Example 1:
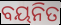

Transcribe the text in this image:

ବୟନିତ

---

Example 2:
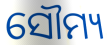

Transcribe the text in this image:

ସୌମ୍ଯ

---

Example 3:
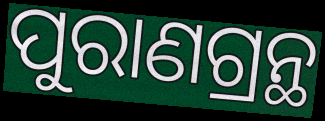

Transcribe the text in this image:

ପୁରାଣଗ୍ରନ୍ଥ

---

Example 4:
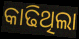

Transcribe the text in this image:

କାଢିଥିଲା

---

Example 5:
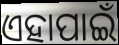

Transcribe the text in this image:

ଏହାପାଇଁ